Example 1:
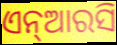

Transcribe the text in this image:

ଏନ୍ଆରସି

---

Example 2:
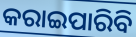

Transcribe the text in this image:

କରାଇପାରିବି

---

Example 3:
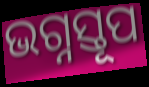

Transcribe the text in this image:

ଭଗ୍ନସ୍ତୂପ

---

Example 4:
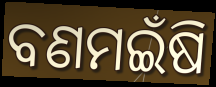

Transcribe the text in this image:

ବଣମଇଁଷି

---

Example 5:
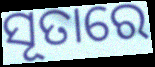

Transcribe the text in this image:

ସୂତାରେ